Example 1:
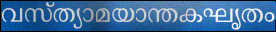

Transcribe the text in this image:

വസ്ത്യാമയാന്തകഘൃതം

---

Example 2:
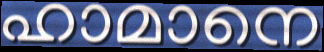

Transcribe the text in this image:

ഹാമാനെ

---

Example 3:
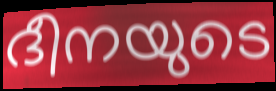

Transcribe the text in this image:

ദീനയുടെ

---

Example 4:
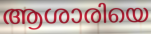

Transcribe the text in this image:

ആശാരിയെ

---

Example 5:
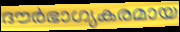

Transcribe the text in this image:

ദൗർഭാഗ്യകരമായ